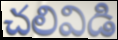
చలివిడి